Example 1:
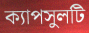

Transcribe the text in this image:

ক্যাপসুলটি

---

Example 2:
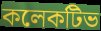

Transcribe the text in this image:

কলেকটিভ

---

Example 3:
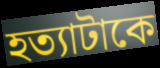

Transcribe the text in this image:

হত্যাটাকে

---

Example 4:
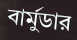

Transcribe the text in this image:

বার্মুডার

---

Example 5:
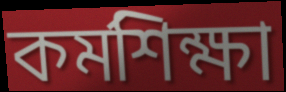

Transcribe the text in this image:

কর্মশিক্ষা